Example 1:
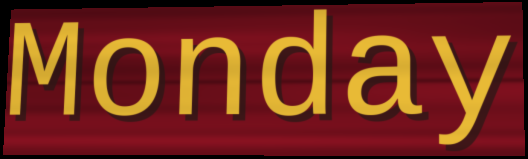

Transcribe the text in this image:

Monday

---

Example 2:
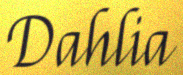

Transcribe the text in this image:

Dahlia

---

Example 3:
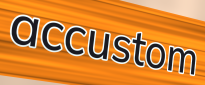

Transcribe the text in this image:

accustom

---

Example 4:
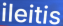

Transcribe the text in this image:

ileitis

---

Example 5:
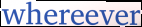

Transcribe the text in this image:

whereever